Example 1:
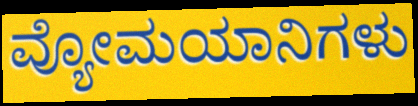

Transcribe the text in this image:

ವ್ಯೋಮಯಾನಿಗಳು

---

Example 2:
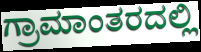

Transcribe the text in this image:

ಗ್ರಾಮಾಂತರದಲ್ಲಿ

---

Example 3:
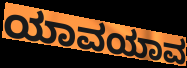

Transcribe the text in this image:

ಯಾವಯಾವ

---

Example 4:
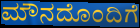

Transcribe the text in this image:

ಮೌನದೊಂದಿಗೆ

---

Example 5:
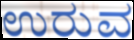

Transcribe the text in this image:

ಉರುವ